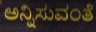
ಅನ್ನಿಸುವಂತೆ